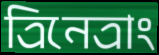
ত্রিনেত্রাং